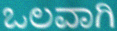
ಒಲವಾಗಿ